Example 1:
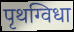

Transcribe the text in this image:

पृथग्विधा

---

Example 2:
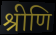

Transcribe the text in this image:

श्रीणि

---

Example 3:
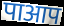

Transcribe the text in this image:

पाआप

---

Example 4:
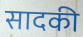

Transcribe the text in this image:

सादकी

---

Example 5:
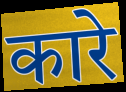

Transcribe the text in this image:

कारे